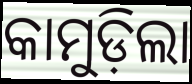
କାମୁଡ଼ିଲା